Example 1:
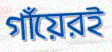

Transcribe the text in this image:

গাঁয়েরই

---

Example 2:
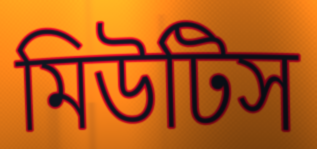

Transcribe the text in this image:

মিউটিস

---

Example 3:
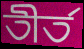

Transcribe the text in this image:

তীর্ত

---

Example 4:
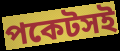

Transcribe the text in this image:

পকেটসই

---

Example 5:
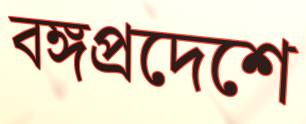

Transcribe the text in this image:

বঙ্গপ্রদেশে